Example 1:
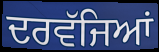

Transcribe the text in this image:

ਦਰਵੱਜਿਆਂ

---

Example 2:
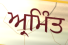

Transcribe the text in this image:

ਅ੍ਰਮਿੰਤ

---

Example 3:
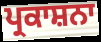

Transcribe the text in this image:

ਪ੍ਰਕਾਸ਼ਨਾ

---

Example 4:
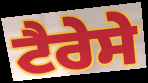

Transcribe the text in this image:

ਟੈਰੇਸੇ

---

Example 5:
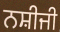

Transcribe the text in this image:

ਨਸ਼ੀਜੀ